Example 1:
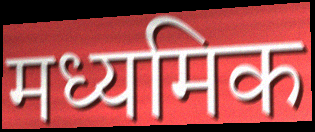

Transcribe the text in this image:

मध्यमिक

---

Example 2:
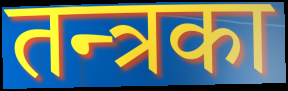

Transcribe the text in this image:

तन्त्रका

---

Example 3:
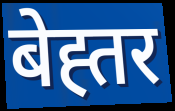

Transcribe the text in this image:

बेह्तर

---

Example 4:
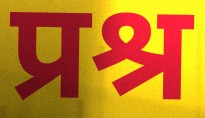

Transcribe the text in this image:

प्रश्र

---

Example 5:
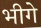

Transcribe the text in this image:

भीगे